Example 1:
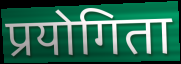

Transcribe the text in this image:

प्रयोगिता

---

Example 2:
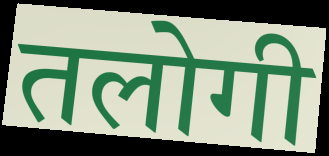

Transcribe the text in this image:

तलोगी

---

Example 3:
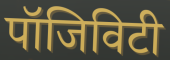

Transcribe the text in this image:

पॉजिविटी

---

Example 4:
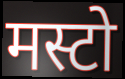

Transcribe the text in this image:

मस्टो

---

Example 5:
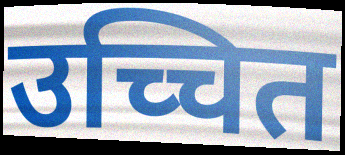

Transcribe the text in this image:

उच्चित